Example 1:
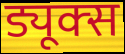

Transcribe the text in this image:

ड्यूक्‍स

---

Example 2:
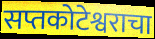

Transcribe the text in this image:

सप्तकोटेश्वराचा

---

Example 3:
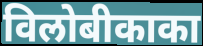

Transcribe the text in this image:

विलोबीकाका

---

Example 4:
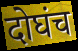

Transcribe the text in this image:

दोघंच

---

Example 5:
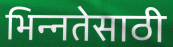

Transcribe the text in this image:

भिन्नतेसाठी